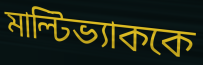
মাল্টিভ্যাককে